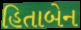
હિતાબેન